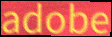
adobe